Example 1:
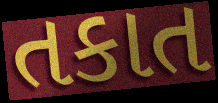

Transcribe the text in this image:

તકાત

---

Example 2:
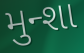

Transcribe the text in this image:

મુન્શા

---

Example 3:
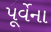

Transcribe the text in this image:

પૂર્વેના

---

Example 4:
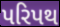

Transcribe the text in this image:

પરિપથ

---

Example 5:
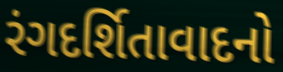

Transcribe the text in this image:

રંગદર્શિતાવાદનો